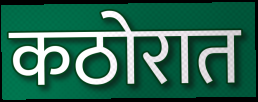
कठोरात